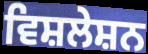
ਵਿਸ਼ਲੇਸ਼ਨ